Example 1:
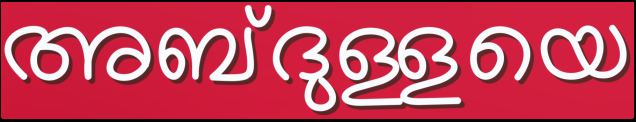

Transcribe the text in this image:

അബ്ദുള്ളയെ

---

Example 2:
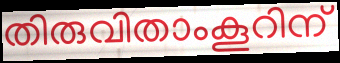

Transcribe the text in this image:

തിരുവിതാംകൂറിന്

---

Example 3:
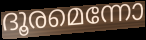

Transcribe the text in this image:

ദൂരമെന്നോ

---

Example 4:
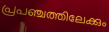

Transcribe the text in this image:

പ്രപഞ്ചത്തിലേക്കും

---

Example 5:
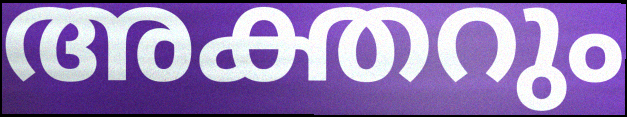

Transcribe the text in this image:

അക്തറും